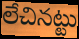
లేచినట్టు